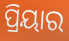
ପ୍ରିୟାର